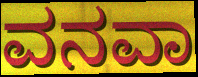
ವನವಾ